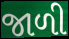
જાળી